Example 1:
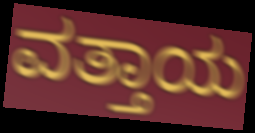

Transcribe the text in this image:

ವತ್ತಾಯ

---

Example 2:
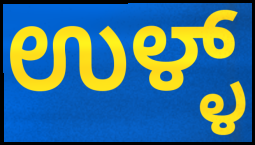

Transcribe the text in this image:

ಉಳ್ಳ್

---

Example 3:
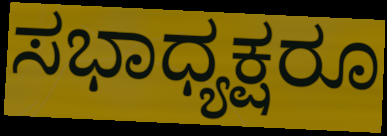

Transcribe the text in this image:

ಸಭಾಧ್ಯಕ್ಷರೂ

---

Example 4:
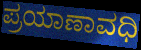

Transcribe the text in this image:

ಪ್ರಯಾಣಾವಧಿ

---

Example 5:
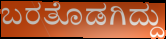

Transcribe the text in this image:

ಬರತೊಡಗಿದ್ದು